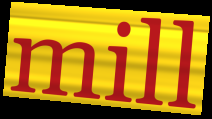
mill